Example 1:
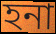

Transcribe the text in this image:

হনা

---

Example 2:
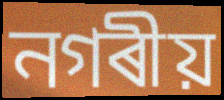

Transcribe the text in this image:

নগৰীয়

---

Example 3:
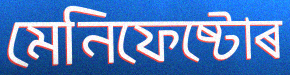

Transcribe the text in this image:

মেনিফেষ্টোৰ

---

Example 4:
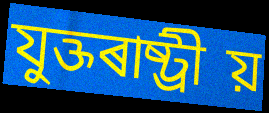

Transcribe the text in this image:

যুক্তৰাষ্ট্ৰীয়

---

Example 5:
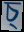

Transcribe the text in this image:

চ্